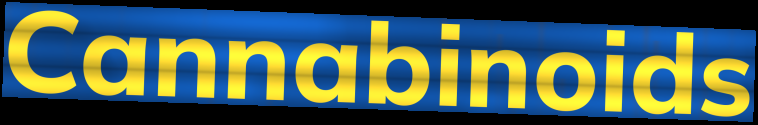
Cannabinoids